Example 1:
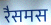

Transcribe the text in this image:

रैसमस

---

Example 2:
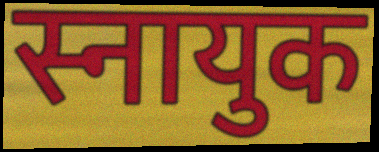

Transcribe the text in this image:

स्नायुक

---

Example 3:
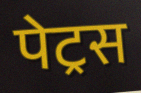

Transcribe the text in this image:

पेट्रस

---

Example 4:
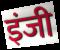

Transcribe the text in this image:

इंजी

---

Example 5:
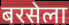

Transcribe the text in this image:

बरसेला